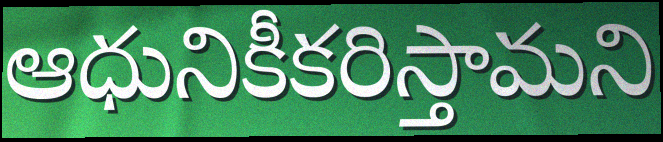
ఆధునికీకరిస్తామని